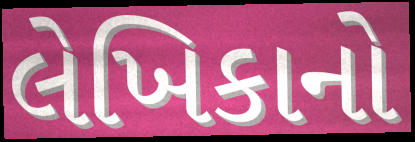
લેખિકાનો